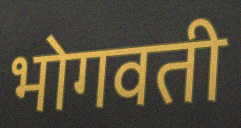
भोगवती